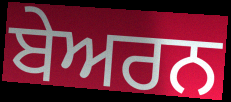
ਬੇਅਰਨ